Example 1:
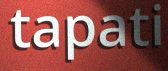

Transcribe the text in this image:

tapati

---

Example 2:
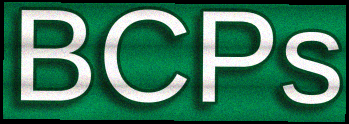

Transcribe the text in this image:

BCPs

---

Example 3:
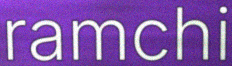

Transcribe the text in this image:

ramchi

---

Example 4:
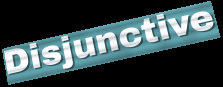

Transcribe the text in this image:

Disjunctive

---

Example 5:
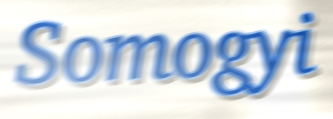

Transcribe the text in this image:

Somogyi